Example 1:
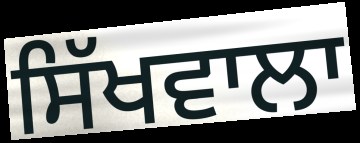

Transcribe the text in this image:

ਸਿੱਖਵਾਲਾ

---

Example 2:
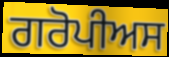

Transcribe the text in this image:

ਗਰੋਪੀਅਸ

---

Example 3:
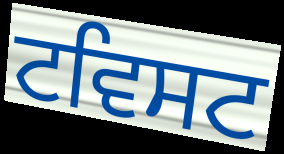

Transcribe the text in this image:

ਟਵਿਸਟ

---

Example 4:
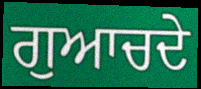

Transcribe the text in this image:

ਗੁਆਚਦੇ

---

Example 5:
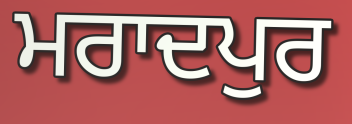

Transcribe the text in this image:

ਮਰਾਦਪੁਰ